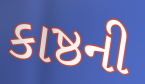
કાષ્ઠની